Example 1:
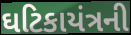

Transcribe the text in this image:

ઘટિકાયંત્રની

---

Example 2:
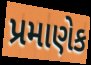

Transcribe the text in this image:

પ્રમાણેક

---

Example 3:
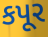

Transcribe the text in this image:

કપૂર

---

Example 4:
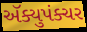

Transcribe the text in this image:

ઍક્યુપંક્ચર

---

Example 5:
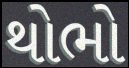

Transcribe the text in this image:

થોભો